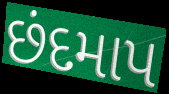
છંદમાપ